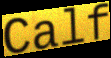
Calf